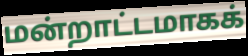
மன்றாட்டமாகக்